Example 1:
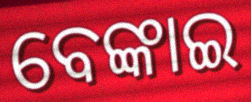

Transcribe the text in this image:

ବେଙ୍କାଇ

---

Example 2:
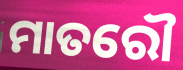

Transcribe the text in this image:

ମାତରୌ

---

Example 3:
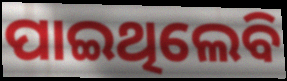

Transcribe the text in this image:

ପାଇଥିଲେବି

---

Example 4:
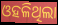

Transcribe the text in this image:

ଓହଳିଥିଲା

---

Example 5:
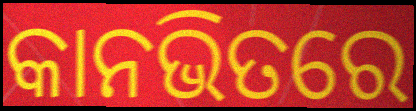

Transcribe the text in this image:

କାନଭିତରେ